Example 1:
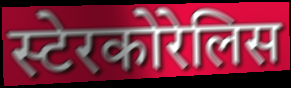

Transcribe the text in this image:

स्टेरकोरेलिस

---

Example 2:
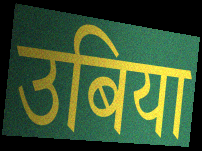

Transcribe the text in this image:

उबिया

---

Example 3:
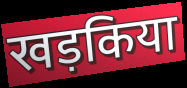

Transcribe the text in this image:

खड़किया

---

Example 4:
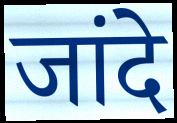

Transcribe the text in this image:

जांदे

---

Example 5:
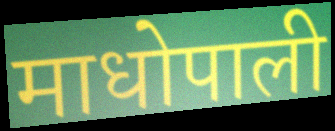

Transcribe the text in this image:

माधोपाली